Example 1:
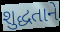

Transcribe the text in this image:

શુદ્ધતાને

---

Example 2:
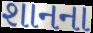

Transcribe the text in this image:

શાનના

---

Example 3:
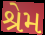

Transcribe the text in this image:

શ્રેમ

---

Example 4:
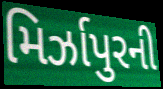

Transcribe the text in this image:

મિર્ઝાપુરની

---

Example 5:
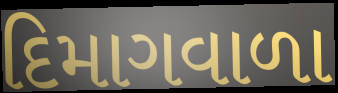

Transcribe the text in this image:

દિમાગવાળા